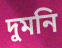
দুমনি